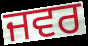
ਜਵਰ